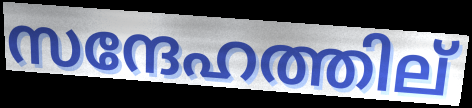
സന്ദേഹത്തില്